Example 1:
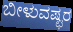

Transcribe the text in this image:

ಬೀಳುವಷ್ಟರ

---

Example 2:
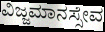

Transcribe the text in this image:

ವಿಜ್ಜಮಾನಸ್ಸೇವ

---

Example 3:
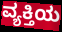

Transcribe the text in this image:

ವ್ಯಕ್ತಿಯ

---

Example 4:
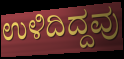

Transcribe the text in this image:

ಉಳಿದಿದ್ದವು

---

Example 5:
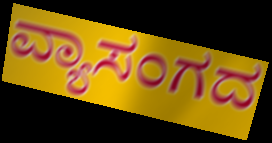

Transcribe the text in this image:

ವ್ಯಾಸಂಗದ